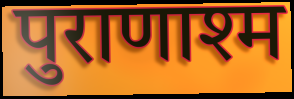
पुराणाश्म